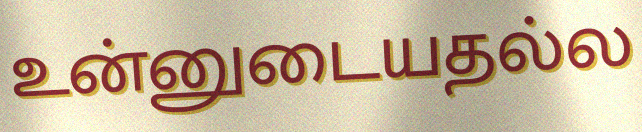
உன்னுடையதல்ல